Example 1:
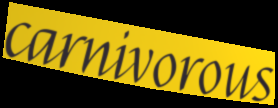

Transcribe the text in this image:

carnivorous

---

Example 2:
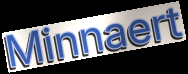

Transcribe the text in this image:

Minnaert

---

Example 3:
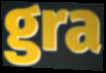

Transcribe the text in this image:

gra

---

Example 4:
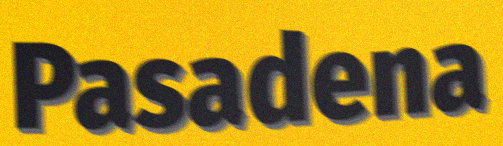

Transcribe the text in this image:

Pasadena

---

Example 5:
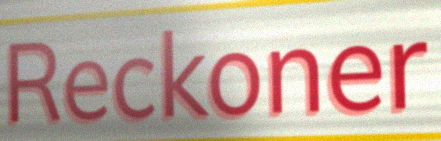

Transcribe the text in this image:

Reckoner